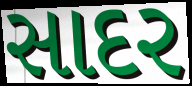
સાદર